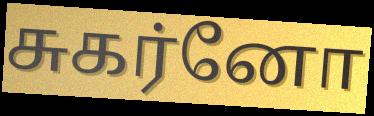
சுகர்னோ